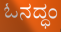
ಓನದ್ಧಂ